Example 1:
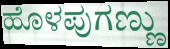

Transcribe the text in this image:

ಹೊಳಪುಗಣ್ಣು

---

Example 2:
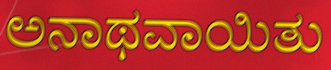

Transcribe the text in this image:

ಅನಾಥವಾಯಿತು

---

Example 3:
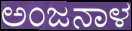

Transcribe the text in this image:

ಅಂಜನಾಳ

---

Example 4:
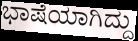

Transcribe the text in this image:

ಭಾಷೆಯಾಗಿದ್ದು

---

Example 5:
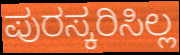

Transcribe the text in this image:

ಪುರಸ್ಕರಿಸಿಲ್ಲ